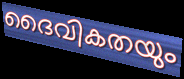
ദൈവികതയും